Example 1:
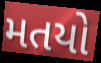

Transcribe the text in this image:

મતયો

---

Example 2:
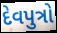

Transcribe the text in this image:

દેવપુત્રો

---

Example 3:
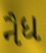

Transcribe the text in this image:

નૈધ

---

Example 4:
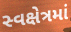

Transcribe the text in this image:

સ્વક્ષેત્રમાં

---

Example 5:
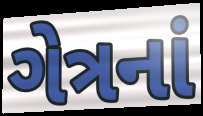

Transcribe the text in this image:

ગેત્રનાં